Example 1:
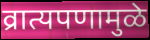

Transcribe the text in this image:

व्रात्यपणामुळे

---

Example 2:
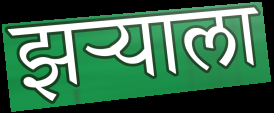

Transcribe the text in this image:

झर्‍याला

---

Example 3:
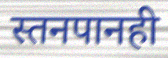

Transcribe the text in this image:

स्तनपानही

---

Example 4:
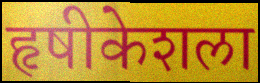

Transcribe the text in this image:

हृषीकेशला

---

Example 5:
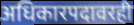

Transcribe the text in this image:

अधिकारपदावरही